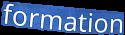
formation